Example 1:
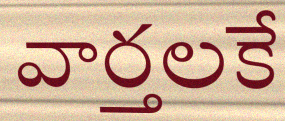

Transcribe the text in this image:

వార్తలకే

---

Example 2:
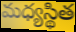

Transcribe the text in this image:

మధ్యస్థిత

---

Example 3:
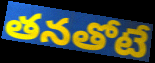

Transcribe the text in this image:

తనతోటే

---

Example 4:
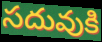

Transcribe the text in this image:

సదువుకి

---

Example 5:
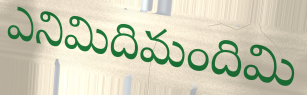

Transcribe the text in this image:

ఎనిమిదిమందిమి